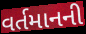
વર્તમાનની